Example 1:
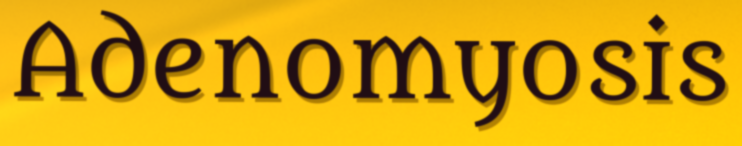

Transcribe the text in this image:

Adenomyosis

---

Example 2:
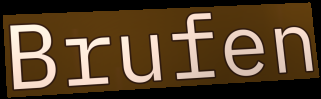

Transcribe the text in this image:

Brufen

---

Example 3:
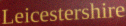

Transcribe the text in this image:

Leicestershire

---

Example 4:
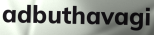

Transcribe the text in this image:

adbuthavagi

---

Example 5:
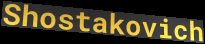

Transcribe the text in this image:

Shostakovich